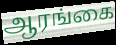
ஆரங்கை